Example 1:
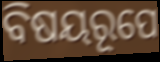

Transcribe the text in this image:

ବିଷୟରୂପେ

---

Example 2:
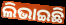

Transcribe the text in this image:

ଲିଭାଇଛି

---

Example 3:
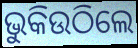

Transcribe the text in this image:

ଭୁକିଉଠିଲେ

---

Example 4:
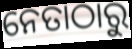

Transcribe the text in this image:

ନେତାଠାରୁ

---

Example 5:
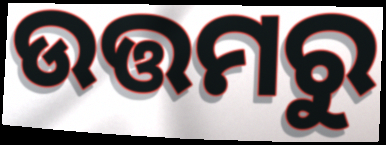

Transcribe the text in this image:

ଉତ୍ତମରୁ